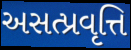
અસત્પ્રવૃત્તિ